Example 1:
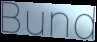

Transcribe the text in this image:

Bund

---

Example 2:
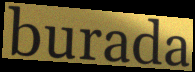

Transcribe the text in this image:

burada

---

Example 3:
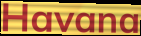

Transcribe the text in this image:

Havana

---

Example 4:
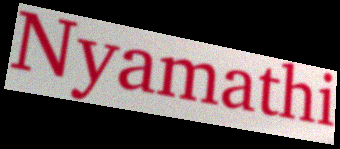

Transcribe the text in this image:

Nyamathi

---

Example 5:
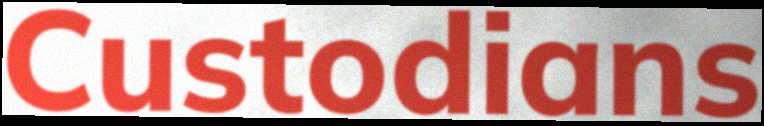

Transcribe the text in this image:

Custodians